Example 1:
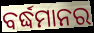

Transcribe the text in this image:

ବର୍ଦ୍ଧମାନର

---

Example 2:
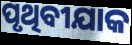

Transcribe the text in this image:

ପୃଥିବୀଯାକ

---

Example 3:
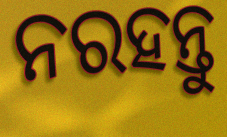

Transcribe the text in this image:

ନରହନ୍ତୁ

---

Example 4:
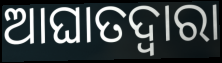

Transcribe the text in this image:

ଆଘାତଦ୍ୱାରା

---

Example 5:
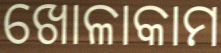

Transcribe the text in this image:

ଖୋଳାକାମ